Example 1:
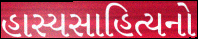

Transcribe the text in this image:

હાસ્યસાહિત્યનો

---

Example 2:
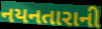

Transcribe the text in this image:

નયનતારાની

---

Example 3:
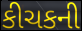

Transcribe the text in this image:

કીચકની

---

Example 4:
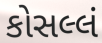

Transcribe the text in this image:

કોસલ્લં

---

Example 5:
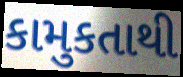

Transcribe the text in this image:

કામુકતાથી